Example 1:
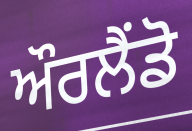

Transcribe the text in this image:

ਔਰਲੈਂਡੋ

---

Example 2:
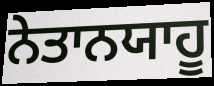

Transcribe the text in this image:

ਨੇਤਾਨਯਾਹੂ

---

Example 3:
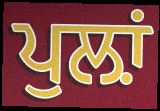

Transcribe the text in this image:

ਪੁਲ਼ਾਂ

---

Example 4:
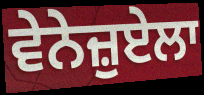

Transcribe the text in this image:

ਵੇਨੇਜ਼ੁਏਲਾ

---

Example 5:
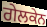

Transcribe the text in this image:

ਗੇਲਕੇਨ